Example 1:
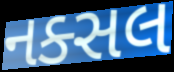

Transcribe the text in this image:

નક્સલ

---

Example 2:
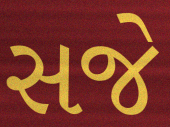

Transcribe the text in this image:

સજે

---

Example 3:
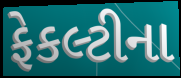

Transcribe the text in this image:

ફેકલ્ટીના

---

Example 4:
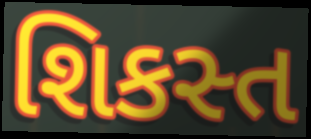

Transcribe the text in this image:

શિકસ્ત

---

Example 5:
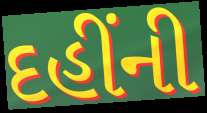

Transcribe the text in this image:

દહીંની